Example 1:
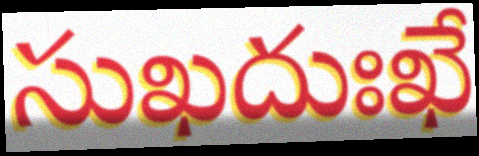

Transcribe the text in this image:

సుఖదుఃఖే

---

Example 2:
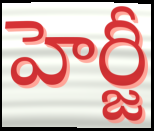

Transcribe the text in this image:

హెర్జీ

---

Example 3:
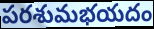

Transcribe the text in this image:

పరశుమభయదం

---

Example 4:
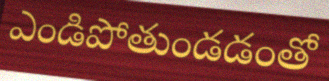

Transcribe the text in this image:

ఎండిపోతుండడంతో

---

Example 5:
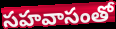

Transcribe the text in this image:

సహవాసంతో